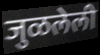
जुळलेली